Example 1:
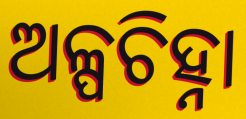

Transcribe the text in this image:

ଅଳ୍ପଚିହ୍ନା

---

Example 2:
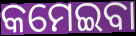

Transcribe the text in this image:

କମେଇବା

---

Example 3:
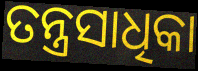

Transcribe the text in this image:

ତନ୍ତ୍ରସାଧିକା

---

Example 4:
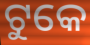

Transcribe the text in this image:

ଟୁକେ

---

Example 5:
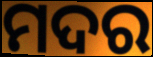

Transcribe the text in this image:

ମଦର